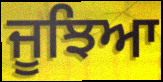
ਜੂਝਿਆ